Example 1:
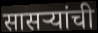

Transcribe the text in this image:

सासऱ्यांची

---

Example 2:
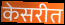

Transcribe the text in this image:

केसरीत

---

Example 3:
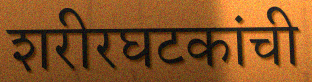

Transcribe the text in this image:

शरीरघटकांची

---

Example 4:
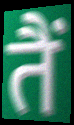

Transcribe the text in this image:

तैं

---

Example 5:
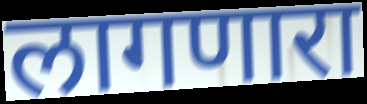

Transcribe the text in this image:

लागणारा